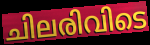
ചിലരിവിടെ